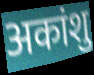
अकांशु